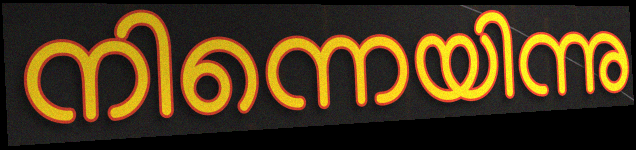
നിന്നെയിന്നു